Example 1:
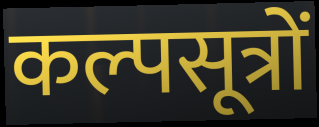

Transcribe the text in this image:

कल्पसूत्रों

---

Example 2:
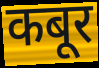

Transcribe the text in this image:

कबूर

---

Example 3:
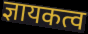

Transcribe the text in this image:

ज्ञायकत्व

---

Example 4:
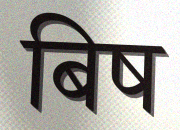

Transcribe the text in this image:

बिष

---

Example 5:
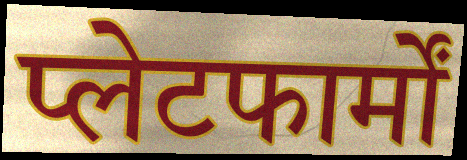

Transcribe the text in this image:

प्लेटफार्मों